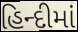
હિન્દીમાં